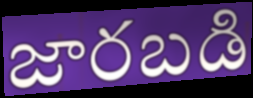
జారబడి